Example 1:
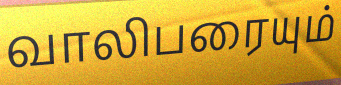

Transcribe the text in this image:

வாலிபரையும்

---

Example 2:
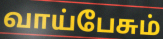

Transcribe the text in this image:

வாய்பேசும்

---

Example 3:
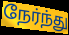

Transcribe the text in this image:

நேர்ந்து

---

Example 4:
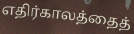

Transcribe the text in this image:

எதிர்காலத்தைத்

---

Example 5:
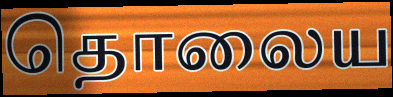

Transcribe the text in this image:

தொலைய